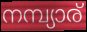
നമ്പ്യാര്